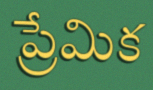
ప్రేమిక